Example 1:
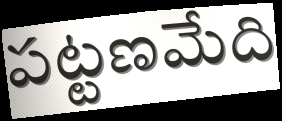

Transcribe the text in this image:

పట్టణమేది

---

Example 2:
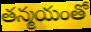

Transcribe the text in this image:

తన్మయంతో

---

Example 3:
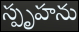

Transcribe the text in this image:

స్పృహను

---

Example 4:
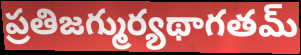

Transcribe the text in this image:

ప్రతిజగ్ముర్యథాగతమ్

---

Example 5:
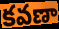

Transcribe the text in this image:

కవణా